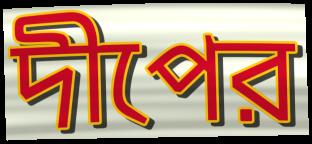
দীপের